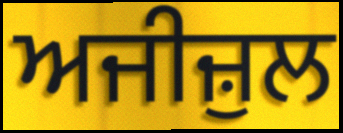
ਅਜੀਜ਼ੁਲ